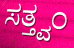
ಸತ್ತ್ವಂ